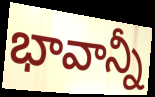
భావాన్నీ